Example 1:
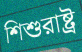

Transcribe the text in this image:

শিশুরাষ্ট্র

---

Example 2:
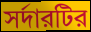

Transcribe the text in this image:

সর্দারটির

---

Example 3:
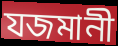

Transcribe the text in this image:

যজমানী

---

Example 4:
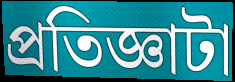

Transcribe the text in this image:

প্রতিজ্ঞাটা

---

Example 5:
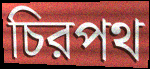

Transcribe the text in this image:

চিরপথ